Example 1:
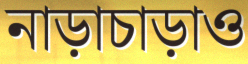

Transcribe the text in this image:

নাড়াচাড়াও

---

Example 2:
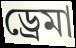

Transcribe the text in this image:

ড্রেমা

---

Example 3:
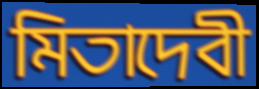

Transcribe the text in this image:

মিতাদেবী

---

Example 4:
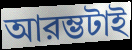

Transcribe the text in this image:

আরম্ভটাই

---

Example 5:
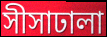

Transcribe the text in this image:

সীসাঢালা